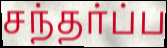
சந்தர்ப்ப